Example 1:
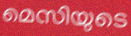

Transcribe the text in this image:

മെസിയുടെ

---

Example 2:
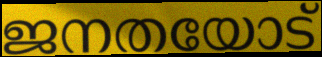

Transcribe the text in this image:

ജനതയോട്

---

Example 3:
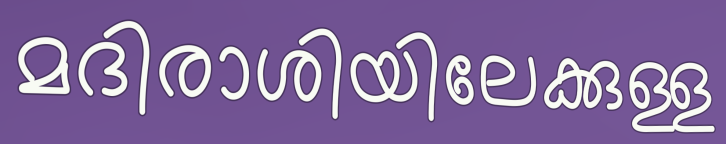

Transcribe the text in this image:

മദിരാശിയിലേക്കുള്ള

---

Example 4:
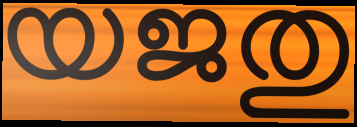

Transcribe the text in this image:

യജതു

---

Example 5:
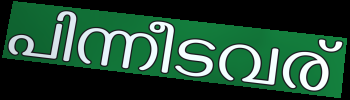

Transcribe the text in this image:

പിന്നീടവര്